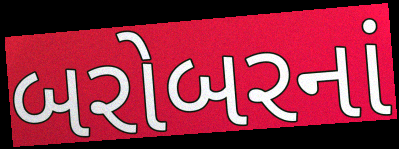
બરોબરનાં